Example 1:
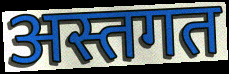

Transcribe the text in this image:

अस्तगत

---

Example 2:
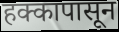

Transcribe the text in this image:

हक्कापासून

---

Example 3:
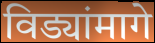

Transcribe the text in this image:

विड्यांमागे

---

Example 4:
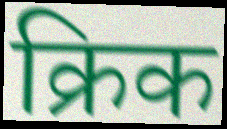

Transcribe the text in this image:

क्रिक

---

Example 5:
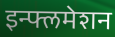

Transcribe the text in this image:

इन्फ्लमेशन